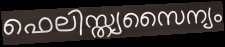
ഫെലിസ്ത്യസൈന്യം